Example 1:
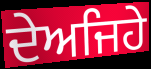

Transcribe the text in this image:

ਦੇਅਜਿਹੇ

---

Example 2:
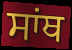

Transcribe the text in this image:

ਸਾਂਥ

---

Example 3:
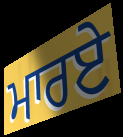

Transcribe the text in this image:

ਮਾਰਏ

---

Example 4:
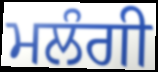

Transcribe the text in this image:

ਮਲੰਗੀ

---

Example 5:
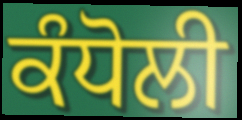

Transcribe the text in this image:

ਕੰਧੋਲੀ